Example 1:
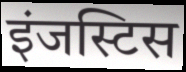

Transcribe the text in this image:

इंजस्टिस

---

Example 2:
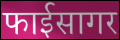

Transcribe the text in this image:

फाईसागर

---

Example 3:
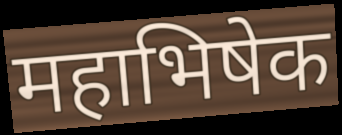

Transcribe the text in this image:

महाभिषेक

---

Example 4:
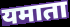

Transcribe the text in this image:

यमाता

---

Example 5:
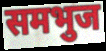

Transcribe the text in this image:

समभुज